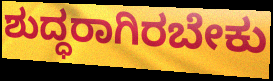
ಶುದ್ಧರಾಗಿರಬೇಕು